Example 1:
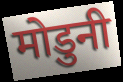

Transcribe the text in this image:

मोडुनी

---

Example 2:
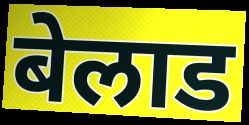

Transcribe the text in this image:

बेलाड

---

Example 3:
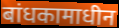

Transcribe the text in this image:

बांधकामाधीन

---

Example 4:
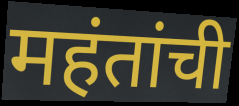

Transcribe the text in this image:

महंतांची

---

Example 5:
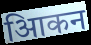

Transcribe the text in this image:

आिकन